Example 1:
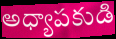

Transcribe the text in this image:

అధ్యాపకుడి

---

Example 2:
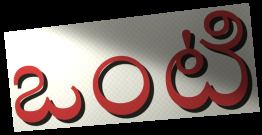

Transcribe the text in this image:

ఒంటి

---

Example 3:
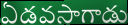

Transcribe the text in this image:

ఏడవసాగాడు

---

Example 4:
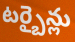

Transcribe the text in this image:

టర్బైన్లు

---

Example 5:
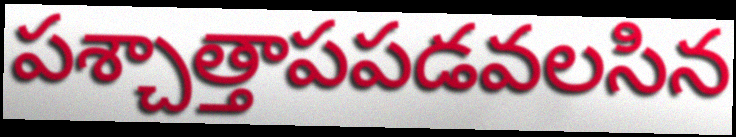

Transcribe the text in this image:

పశ్చాత్తాపపడవలసిన